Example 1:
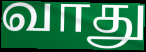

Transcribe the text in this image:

வாது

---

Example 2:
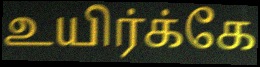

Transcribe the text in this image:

உயிர்க்கே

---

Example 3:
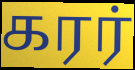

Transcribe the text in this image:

கரர்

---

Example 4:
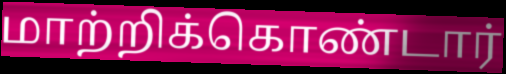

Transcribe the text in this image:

மாற்றிக்கொண்டார்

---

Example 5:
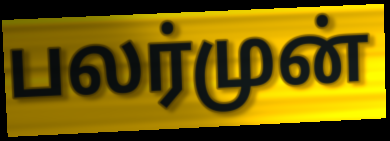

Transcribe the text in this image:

பலர்முன்